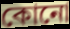
কোনো